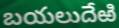
బయలుదేఱి